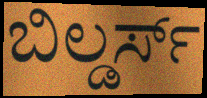
ಬಿಲ್ಡರ್ಸ್